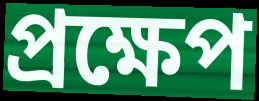
প্ৰক্ষেপ